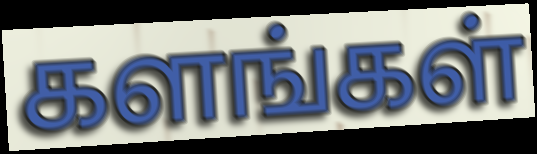
களங்கள்